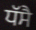
ਧੱਸੈ